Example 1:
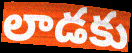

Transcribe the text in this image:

లాడకు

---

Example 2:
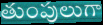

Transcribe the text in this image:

తుంపులుగా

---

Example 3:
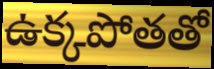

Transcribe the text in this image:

ఉక్కపోతతో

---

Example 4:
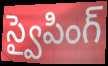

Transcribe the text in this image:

స్వైపింగ్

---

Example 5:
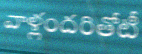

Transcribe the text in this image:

వాళ్లందరితోటీ